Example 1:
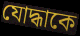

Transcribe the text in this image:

যোদ্ধাকে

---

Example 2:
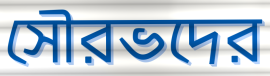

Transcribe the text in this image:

সৌরভদের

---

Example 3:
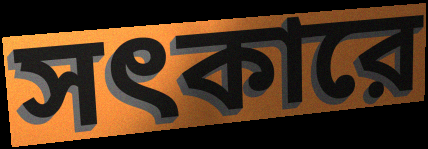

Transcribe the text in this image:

সৎকারে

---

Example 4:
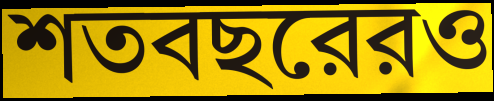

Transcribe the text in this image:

শতবছরেরও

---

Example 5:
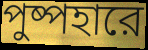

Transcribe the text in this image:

পুষ্পহারে